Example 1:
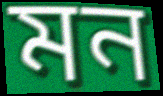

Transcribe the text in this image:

মন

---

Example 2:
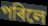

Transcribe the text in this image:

পৰিলে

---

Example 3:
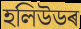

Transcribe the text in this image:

হলিউডৰ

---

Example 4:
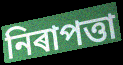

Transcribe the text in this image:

নিৰাপত্তা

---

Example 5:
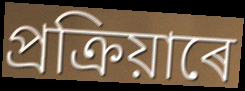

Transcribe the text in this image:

প্ৰক্ৰিয়াৰে